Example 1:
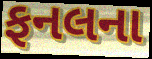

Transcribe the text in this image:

ફનલના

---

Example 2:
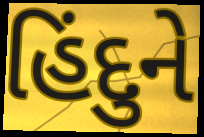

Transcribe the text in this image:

હિંદુને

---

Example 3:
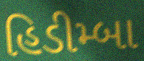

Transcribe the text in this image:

હિડીમ્બા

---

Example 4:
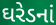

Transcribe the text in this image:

ઘરેડનાં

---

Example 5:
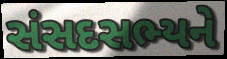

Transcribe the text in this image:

સંસદસભ્યને